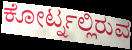
ಕೋರ್ಟ್ನಲ್ಲಿರುವ